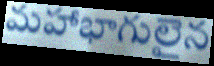
మహాభాగులైన